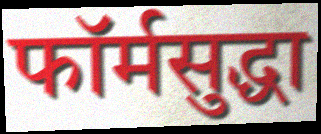
फॉर्मसुद्धा